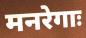
मनरेगाः